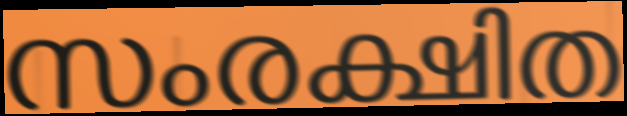
സംരക്ഷിത